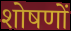
शोषणों